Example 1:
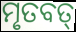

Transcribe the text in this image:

ମୃତବତ୍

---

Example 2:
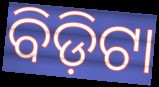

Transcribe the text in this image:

ବିଡ଼ିଟା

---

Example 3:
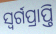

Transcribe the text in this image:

ସ୍ୱର୍ଗପ୍ରାପ୍ତି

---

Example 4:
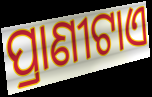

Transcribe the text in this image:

ପ୍ରାଣୀଟାଏ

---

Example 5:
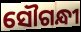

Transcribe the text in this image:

ସୌଗନ୍ଧୀ